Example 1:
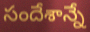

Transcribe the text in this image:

సందేశాన్నే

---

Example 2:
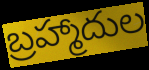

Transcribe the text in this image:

బ్రహ్మాదుల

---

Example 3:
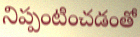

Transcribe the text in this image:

నిప్పంటించడంతో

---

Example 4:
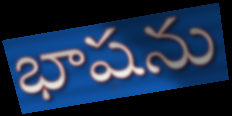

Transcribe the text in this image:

భాషను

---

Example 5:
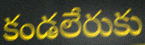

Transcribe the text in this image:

కండలేరుకు